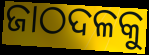
ଜାଠଦଳକୁ